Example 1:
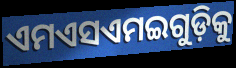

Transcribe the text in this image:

ଏମଏସଏମଇଗୁଡ଼ିକୁ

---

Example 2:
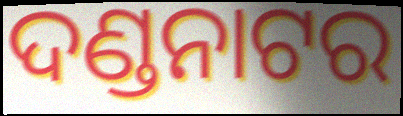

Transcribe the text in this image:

ଦଣ୍ଡନାଟର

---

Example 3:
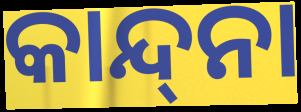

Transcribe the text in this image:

କାନ୍ଦ୍‌ନା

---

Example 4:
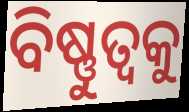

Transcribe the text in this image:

ବିଷ୍ଣୁତ୍ୱକୁ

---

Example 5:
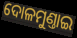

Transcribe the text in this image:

ଦୋଳମୁଣ୍ତାଇ